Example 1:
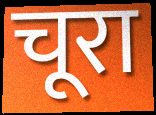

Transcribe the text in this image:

चूरा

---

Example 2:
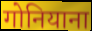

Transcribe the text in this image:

गोनियाना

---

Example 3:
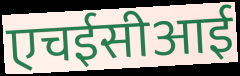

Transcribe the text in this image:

एचईसीआई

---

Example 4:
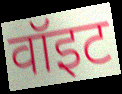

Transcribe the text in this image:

वॉइट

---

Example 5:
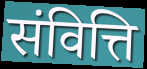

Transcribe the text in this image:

संवित्ति